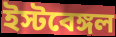
ইস্টবেঙ্গল